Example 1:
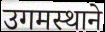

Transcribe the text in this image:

उगमस्थाने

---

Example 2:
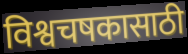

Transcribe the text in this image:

विश्वचषकासाठी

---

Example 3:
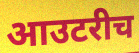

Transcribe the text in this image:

आउटरीच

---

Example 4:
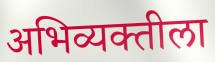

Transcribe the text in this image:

अभिव्यक्तीला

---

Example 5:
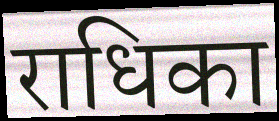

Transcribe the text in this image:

राधिका